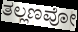
ತಲ್ಲಣವೋ